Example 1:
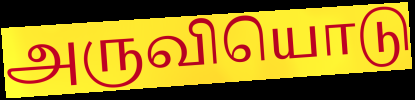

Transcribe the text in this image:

அருவியொடு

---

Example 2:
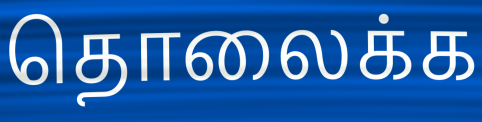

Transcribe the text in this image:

தொலைக்க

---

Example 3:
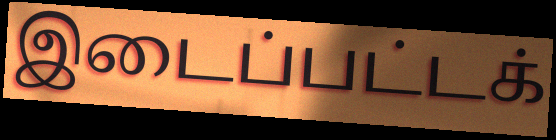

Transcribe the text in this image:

இடைப்பட்டக்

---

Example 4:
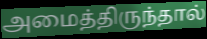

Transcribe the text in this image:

அமைத்திருந்தால்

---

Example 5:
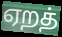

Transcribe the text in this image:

ஏறத்